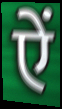
ऐं